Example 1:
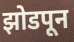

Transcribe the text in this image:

झोडपून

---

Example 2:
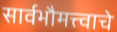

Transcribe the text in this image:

सार्वभौमत्त्वाचे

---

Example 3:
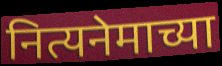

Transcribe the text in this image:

नित्यनेमाच्या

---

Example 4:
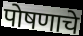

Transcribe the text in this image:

पोषणाचे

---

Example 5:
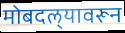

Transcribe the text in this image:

मोबदल्यावरून